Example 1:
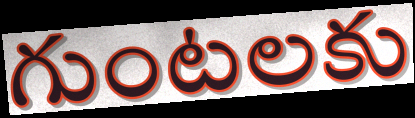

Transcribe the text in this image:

గుంటలకు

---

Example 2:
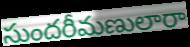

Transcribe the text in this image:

సుందరీమణులారా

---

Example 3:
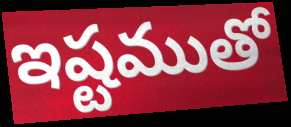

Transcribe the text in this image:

ఇష్టముతో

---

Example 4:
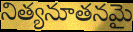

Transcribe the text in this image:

నిత్యనూతనమై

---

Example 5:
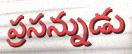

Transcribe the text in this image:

ప్రసన్నుడు